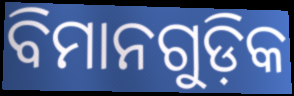
ବିମାନଗୁଡ଼ିକ